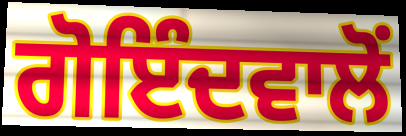
ਗੋਇੰਦਵਾਲੋਂ